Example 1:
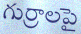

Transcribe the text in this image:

గుర్రాలపై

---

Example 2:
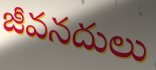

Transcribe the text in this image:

జీవనదులు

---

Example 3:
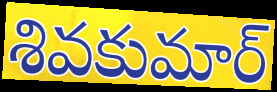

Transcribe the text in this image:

శివకుమార్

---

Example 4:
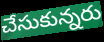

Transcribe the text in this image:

చేసుకున్నరు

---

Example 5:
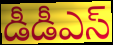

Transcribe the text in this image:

డీడీఎస్